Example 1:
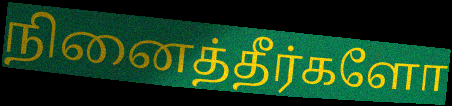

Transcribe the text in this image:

நினைத்தீர்களோ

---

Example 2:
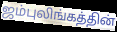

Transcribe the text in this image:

ஜம்புலிங்கத்தின்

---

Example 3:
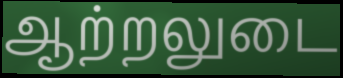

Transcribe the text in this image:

ஆற்றலுடை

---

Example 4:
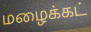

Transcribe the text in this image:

மழைக்கட்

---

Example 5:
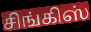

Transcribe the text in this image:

சிங்கிஸ்